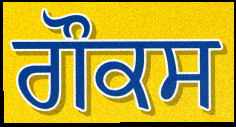
ਗੌਕਸ